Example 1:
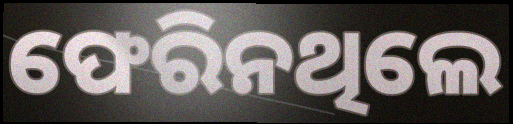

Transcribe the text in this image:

ଫେରିନଥିଲେ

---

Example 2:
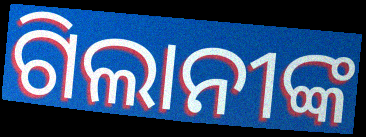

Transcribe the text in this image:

ଗିଲାନୀଙ୍କ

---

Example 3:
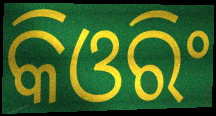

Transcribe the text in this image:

କିଓରିଂ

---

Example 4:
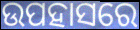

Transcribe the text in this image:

ଉପହାସରେ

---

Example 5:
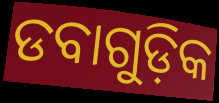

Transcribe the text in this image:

ଡବାଗୁଡ଼ିକ